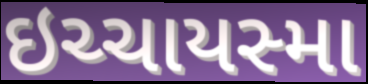
ઇચ્ચાયસ્મા